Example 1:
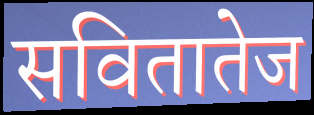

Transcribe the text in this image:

सवितातेज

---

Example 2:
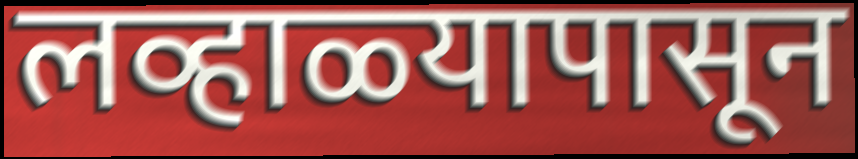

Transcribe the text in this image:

लव्हाळ्यापासून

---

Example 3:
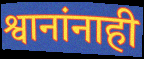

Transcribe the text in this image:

श्वानांनाही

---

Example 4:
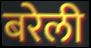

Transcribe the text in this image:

बरेली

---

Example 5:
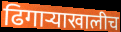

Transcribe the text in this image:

ढिगाऱ्याखालीच